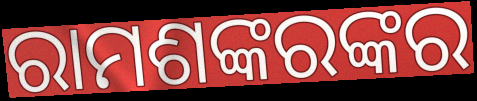
ରାମଶଙ୍କରଙ୍କର